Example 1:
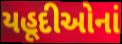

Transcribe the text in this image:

યહૂદીઓનાં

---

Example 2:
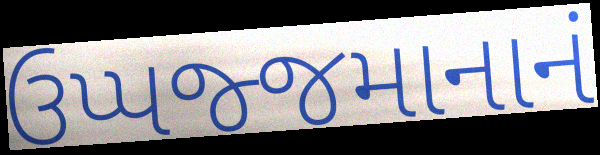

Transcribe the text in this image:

ઉપ્પજ્જમાનાનં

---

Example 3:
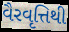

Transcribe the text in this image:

વૈરવૃત્તિથી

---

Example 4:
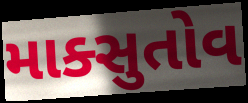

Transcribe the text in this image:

માક્સુતોવ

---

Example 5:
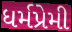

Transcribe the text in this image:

ધર્મપ્રેમી